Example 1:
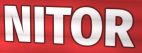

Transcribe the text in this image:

NITOR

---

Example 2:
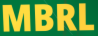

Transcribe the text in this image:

MBRL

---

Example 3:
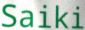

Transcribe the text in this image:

Saiki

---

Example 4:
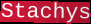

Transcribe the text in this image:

Stachys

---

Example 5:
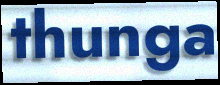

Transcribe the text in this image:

thunga